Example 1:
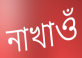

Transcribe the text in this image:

নাখাওঁ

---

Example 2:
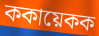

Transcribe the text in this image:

ককায়েকক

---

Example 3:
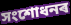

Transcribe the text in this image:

সংশোধনৰ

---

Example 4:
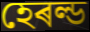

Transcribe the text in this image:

হেৰল্ড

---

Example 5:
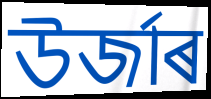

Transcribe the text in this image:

উৰ্জাৰ